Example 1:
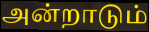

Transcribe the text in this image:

அன்றாடும்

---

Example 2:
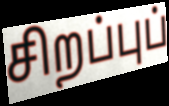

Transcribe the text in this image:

சிறப்புப்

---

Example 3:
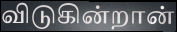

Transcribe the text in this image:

விடுகின்றான்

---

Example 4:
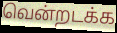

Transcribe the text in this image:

வென்றடக்க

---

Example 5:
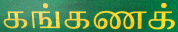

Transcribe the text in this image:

கங்கணக்